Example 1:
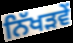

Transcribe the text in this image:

ਨਿੱਖੜਵੇਂ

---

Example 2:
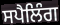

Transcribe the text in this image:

ਸਪੈਲਿੰਗ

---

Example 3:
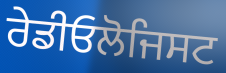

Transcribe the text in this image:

ਰੇਡੀਓਲੋਜਿਸਟ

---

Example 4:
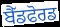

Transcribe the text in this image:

ਬੈੱਡਫੋਰਡ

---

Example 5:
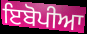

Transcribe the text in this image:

ਇਬੋਪੀਆ